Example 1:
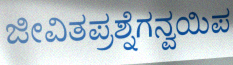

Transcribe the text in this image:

ಜೀವಿತಪ್ರಶ್ನೆಗನ್ವಯಿಪ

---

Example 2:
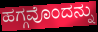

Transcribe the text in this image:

ಹಗ್ಗವೊಂದನ್ನು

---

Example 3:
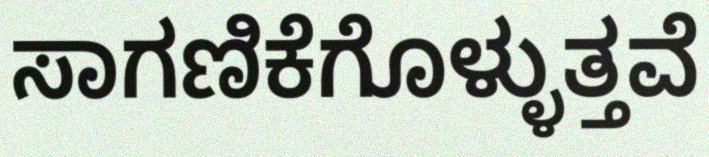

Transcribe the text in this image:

ಸಾಗಣಿಕೆಗೊಳ್ಳುತ್ತವೆ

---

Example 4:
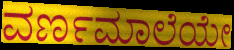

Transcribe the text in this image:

ವರ್ಣಮಾಲೆಯೇ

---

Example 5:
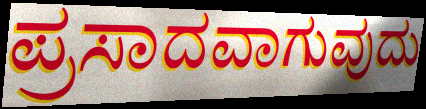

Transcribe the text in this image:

ಪ್ರಸಾದವಾಗುವುದು